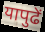
यापुढें